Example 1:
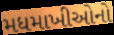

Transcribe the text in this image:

મધમાખીઓનો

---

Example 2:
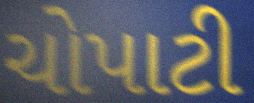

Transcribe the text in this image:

ચોપાટી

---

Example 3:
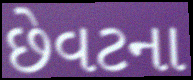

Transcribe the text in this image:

છેવટના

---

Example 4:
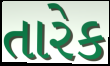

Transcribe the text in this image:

તારેક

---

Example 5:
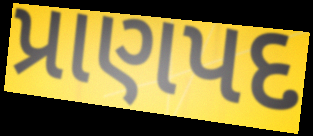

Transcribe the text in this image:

પ્રાણપદ